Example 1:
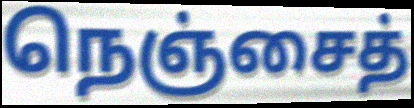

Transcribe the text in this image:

நெஞ்சைத்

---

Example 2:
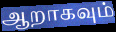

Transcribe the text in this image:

ஆறாகவும்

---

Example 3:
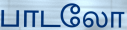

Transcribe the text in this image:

பாடலோ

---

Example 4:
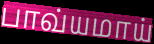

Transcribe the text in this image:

பாவ்யமாய்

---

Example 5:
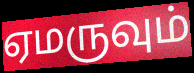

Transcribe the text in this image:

ஏமருவும்